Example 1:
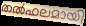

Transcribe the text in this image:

തൽഫലമായി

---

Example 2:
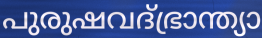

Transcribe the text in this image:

പുരുഷവദ്ഭ്രാന്ത്യാ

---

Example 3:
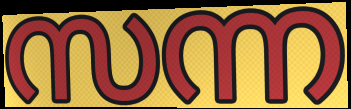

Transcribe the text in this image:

സന്ന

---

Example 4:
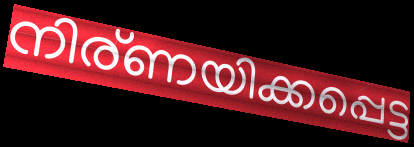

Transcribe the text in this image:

നിര്ണയിക്കപ്പെട്ട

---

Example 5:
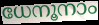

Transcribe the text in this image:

ധേനൂനാം